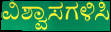
ವಿಶ್ವಾಸಗಳಿಸಿ